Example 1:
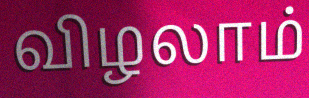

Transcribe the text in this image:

விழலாம்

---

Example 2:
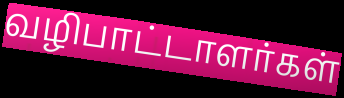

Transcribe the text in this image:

வழிபாட்டாளர்கள்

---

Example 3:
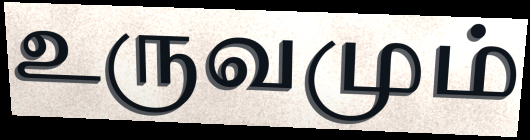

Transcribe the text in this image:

உருவமும்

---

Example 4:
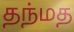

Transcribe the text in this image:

தந்மத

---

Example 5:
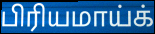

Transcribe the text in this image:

பிரியமாய்க்